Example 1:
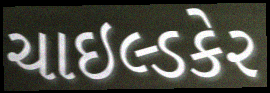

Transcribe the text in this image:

ચાઇલ્ડકેર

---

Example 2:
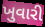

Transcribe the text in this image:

ખુવારી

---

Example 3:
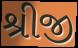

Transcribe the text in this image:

શ્રીજી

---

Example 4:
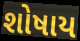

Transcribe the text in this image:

શોષાય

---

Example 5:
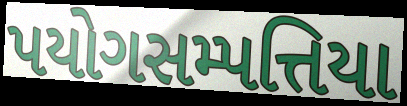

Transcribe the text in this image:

પયોગસમ્પત્તિયા